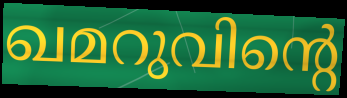
ഖമറുവിന്റെ